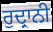
ਰੁਦ੍ਰਾਨੀ